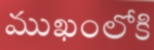
ముఖంలోకి